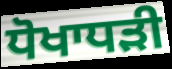
ਧੋਖਾਧਡ਼ੀ